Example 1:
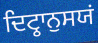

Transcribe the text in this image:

ਦਿਟ੍ਠਾਨੁਸਯਂ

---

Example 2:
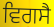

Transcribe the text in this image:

ਵਿਗਸੈ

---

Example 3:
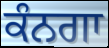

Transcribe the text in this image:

ਕੰਨਗਾ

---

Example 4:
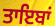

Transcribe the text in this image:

ਤਾਇਬਾਂ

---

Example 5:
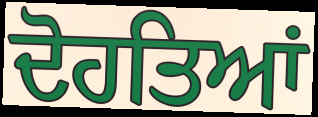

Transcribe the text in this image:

ਦੋਹਤਿਆਂ